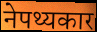
नेपथ्यकार